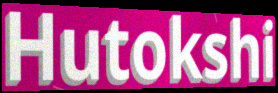
Hutokshi